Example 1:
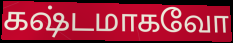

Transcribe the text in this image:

கஷ்டமாகவோ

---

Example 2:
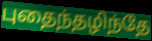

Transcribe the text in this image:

புதைந்தழிந்தே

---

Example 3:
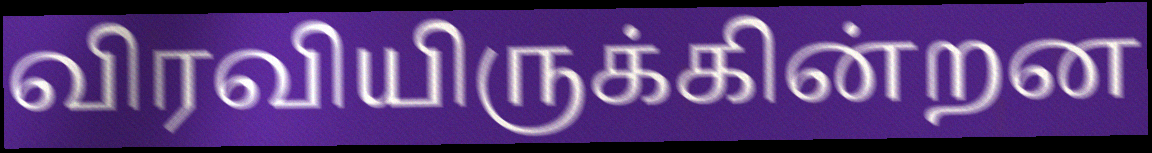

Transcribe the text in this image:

விரவியிருக்கின்றன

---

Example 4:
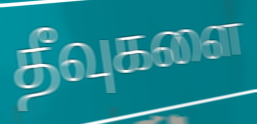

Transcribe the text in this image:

தீவுகளை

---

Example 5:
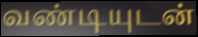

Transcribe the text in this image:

வண்டியுடன்